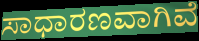
ಸಾಧಾರಣವಾಗಿವೆ